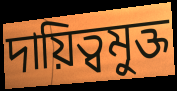
দায়িত্বমুক্ত